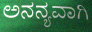
ಅನನ್ಯವಾಗಿ